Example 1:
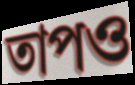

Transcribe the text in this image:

তাপও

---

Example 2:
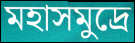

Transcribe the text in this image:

মহাসমুদ্রে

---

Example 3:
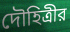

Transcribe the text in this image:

দৌহিত্রীর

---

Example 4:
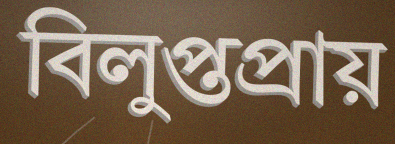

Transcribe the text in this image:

বিলুপ্তপ্রায়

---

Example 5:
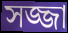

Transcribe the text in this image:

সজ্জা